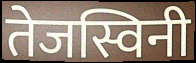
तेजस्विनी